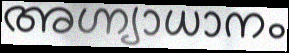
അഗ്ന്യാധാനം